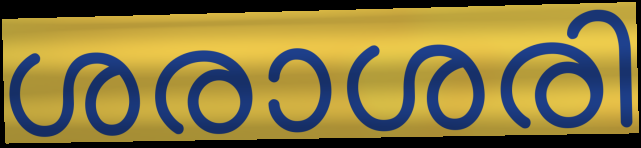
ശരാശരി